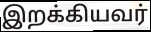
இறக்கியவர்